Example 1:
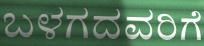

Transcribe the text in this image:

ಬಳಗದವರಿಗೆ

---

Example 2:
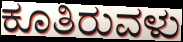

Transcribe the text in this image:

ಕೂತಿರುವಳು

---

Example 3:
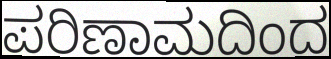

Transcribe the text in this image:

ಪರಿಣಾಮದಿಂದ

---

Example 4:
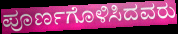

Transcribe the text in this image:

ಪೂರ್ಣಗೊಳಿಸಿದವರು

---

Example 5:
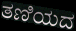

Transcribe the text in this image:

ತಣಿಯದ